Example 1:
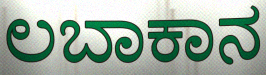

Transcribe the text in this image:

ಲಬಾಕಾನ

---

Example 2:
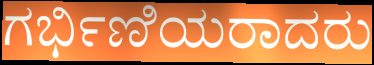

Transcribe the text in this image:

ಗರ್ಭಿಣಿಯರಾದರು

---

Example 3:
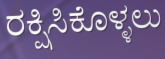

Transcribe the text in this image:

ರಕ್ಷಿಸಿಕೊಳ್ಳಲು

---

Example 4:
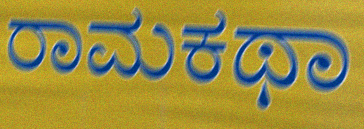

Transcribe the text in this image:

ರಾಮಕಥಾ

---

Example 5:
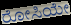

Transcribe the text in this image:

ರೋಸಿಯೇ